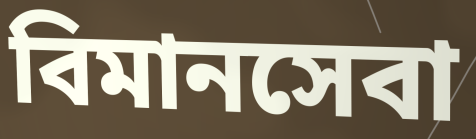
বিমানসেবা